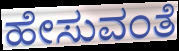
ಹೇಸುವಂತೆ